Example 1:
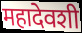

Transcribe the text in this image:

महादेवशी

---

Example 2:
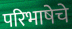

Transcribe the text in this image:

परिभाषेचे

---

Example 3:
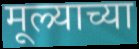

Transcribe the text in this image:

मूल्याच्या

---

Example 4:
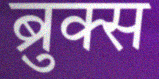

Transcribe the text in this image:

ब्रुक्‍स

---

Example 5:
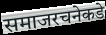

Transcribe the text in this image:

समाजरचनेकडे